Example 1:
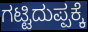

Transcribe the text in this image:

ಗಟ್ಟಿದುಪ್ಪಕ್ಕೆ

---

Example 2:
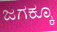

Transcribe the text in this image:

ಜಗಕ್ಕೂ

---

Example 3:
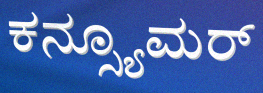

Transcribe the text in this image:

ಕನ್ಸ್ಯೂಮರ್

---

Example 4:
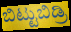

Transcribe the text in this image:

ಬಿಟ್ಟುಬಿಡ್ರಿ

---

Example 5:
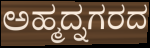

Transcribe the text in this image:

ಅಹ್ಮದ್ನಗರದ